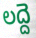
లద్దె